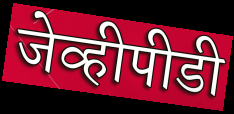
जेव्हीपीडी